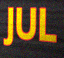
JUL